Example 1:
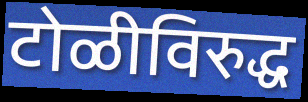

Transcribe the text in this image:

टोळीविरुद्ध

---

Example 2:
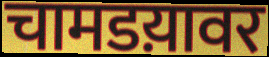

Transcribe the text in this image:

चामडय़ावर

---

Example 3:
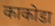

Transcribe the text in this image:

काकोडा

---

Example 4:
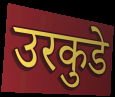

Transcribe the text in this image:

उरकुडे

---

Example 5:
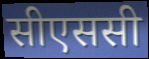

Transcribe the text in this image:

सीएससी